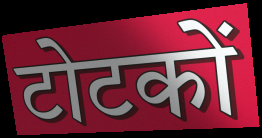
टोटकों